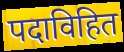
पदाविहित